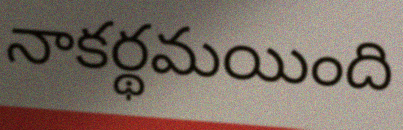
నాకర్థమయింది